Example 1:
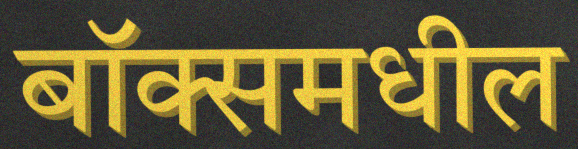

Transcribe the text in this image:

बॉक्समधील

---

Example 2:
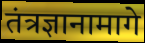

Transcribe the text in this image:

तंत्रज्ञानामागे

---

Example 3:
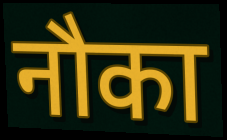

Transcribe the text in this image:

नौका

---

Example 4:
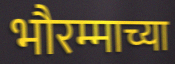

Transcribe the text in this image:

भौरम्माच्या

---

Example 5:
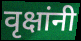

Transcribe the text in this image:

वृक्षांनी